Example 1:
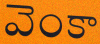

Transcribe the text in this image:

వెంకా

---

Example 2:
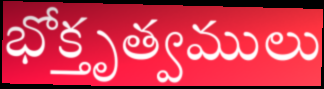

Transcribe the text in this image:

భోక్తృత్వములు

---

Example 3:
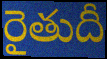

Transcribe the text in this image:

రైతుదీ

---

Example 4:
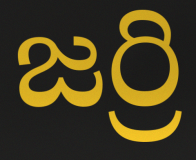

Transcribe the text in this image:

జర్రి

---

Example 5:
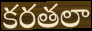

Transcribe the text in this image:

కరతలా